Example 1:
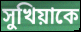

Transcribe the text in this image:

সুখিয়াকে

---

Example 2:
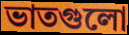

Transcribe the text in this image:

ভাতগুলো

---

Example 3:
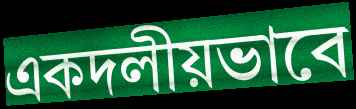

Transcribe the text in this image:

একদলীয়ভাবে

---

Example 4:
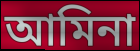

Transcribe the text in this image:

আমিনা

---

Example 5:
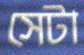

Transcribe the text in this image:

সেটা